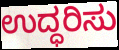
ಉದ್ಧರಿಸು